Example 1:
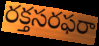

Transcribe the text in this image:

రక్తసరఫరా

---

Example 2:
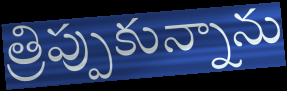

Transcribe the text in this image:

త్రిప్పుకున్నాను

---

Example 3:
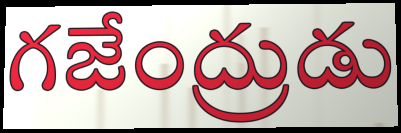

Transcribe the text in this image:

గజేంద్రుడు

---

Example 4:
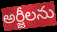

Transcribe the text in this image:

అర్జీలను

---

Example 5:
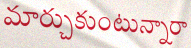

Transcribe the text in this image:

మార్చుకుంటున్నారా